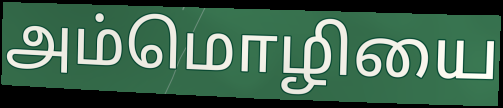
அம்மொழியை